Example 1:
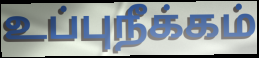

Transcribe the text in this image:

உப்புநீக்கம்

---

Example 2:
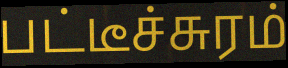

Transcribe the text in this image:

பட்டீச்சுரம்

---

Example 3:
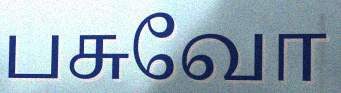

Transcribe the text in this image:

பசுவோ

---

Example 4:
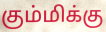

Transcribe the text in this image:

கும்மிக்கு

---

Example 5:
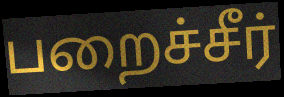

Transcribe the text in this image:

பறைச்சீர்